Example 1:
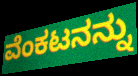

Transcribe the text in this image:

ವೆಂಕಟನನ್ನು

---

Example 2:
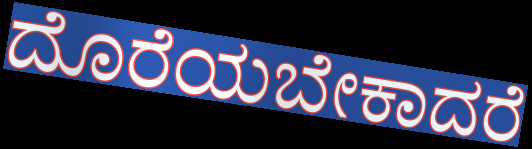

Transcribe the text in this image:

ದೊರೆಯಬೇಕಾದರೆ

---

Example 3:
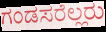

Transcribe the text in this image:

ಗಂಡಸರೆಲ್ಲರು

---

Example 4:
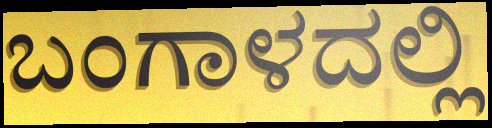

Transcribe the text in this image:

ಬಂಗಾಳದಲ್ಲಿ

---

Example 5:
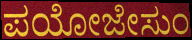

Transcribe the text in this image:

ಪಯೋಜೇಸುಂ